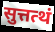
सुत्तत्थं